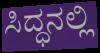
ಸಿದ್ಧನಲ್ಲಿ